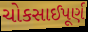
ચોકસાઈપૂર્ણ